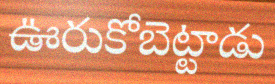
ఊరుకోబెట్టాడు